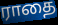
ராதை